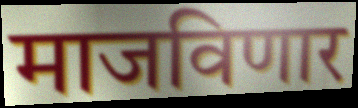
माजविणार